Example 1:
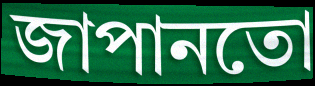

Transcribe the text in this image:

জাপানতো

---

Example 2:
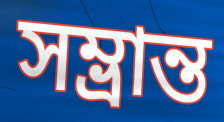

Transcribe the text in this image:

সম্ভ্ৰান্ত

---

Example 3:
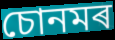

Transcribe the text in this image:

চোনমৰ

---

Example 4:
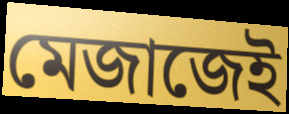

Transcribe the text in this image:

মেজাজেই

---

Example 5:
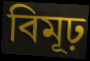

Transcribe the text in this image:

বিমূঢ়